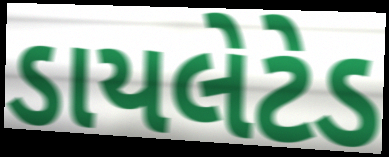
ડાયલેટેડ